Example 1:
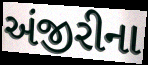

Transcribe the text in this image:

અંજીરીના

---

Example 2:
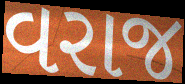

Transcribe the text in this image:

વરાજ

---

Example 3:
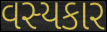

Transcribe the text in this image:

વસ્યકાર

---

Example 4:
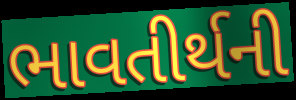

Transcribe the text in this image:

ભાવતીર્થની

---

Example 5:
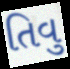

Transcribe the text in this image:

તિવુ